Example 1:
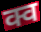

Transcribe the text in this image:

क्व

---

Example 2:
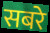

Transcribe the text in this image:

सबरे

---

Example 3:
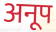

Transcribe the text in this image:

अनूप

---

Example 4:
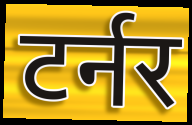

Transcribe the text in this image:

टर्नर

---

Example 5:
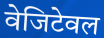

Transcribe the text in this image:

वेजिटेवल